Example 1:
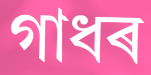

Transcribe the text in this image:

গাধৰ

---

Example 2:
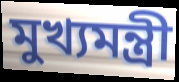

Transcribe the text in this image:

মুখ্যমন্ত্ৰী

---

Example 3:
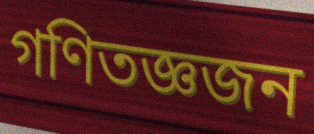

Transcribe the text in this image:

গণিতজ্ঞজন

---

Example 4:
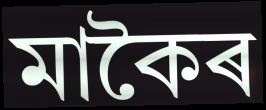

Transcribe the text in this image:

মাকৈৰ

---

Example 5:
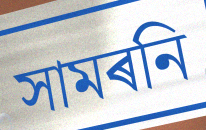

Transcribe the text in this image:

সামৰনি